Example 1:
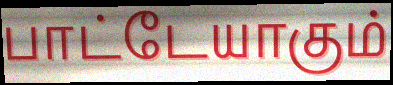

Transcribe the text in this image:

பாட்டேயாகும்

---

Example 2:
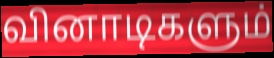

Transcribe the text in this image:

வினாடிகளும்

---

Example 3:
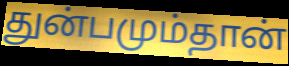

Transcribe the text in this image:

துன்பமும்தான்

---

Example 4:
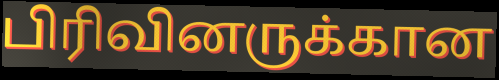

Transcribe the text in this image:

பிரிவினருக்கான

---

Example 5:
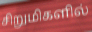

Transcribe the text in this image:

சிறுமிகளில்